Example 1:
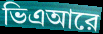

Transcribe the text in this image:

ভিএআরে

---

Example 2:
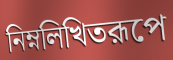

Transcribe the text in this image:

নিম্নলিখিতরূপে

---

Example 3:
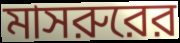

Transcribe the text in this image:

মাসরুরের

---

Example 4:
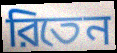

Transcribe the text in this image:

রিতেন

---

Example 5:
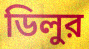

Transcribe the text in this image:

ডিলুর